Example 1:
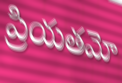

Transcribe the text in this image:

ప్రియతమో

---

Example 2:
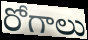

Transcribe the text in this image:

రోగాలు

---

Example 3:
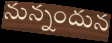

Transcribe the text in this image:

నున్నందున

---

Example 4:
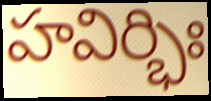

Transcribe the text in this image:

హవిర్భిః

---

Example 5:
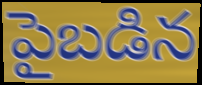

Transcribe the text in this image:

పైబడిన